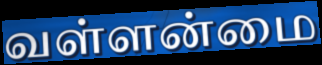
வள்ளன்மை